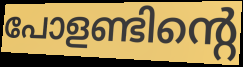
പോളണ്ടിന്റെ